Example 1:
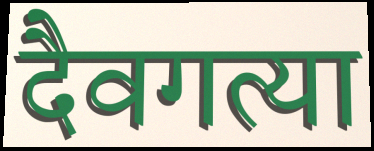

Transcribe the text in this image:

दैवगत्या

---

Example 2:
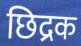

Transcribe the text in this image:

छिद्रक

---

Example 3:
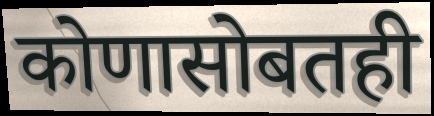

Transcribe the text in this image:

कोणासोबतही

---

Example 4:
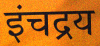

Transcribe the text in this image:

इंचद्रय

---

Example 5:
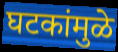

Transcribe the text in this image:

घटकांमुळे